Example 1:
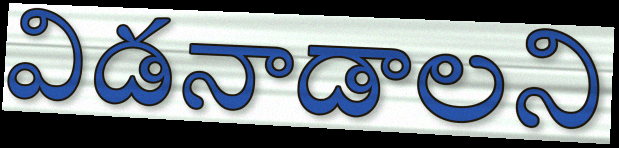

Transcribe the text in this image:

విడనాడాలని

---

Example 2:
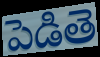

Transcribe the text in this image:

పెడితె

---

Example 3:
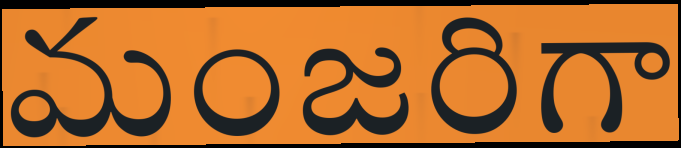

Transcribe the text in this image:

మంజరిగా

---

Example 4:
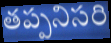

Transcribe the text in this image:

తప్పనిసరి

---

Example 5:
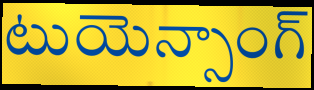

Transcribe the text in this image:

టుయెన్సాంగ్